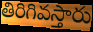
తిరిగివస్తారు